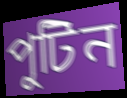
পুটিন